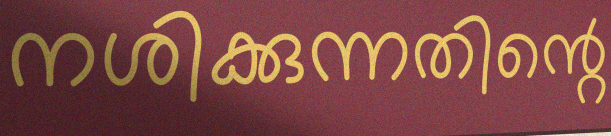
നശിക്കുന്നതിന്റെ